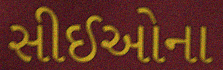
સીઈઓના